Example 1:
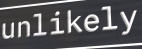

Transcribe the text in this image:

unlikely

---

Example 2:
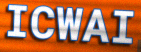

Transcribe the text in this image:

ICWAI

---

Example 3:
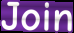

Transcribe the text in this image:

Join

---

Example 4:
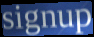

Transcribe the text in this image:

signup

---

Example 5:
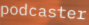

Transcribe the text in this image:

podcaster